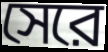
সেরে